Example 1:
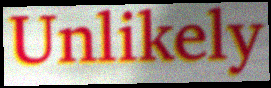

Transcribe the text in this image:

Unlikely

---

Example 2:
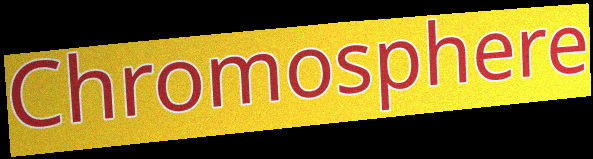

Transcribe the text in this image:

Chromosphere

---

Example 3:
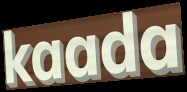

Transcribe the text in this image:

kaada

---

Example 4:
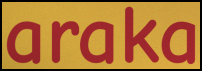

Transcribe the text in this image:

araka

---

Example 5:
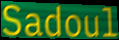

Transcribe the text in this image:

Sadoul